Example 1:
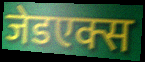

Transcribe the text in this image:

जेडएक्स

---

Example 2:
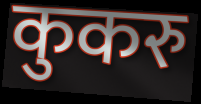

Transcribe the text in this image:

कुकरु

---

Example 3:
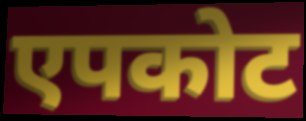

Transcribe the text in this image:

एपकोट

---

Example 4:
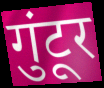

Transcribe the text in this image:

गुंटूर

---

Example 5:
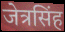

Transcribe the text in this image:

जेत्रसिंह